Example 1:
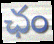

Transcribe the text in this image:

ఛం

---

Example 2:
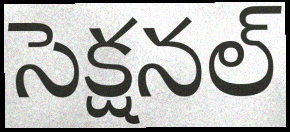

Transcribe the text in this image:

సెక్షనల్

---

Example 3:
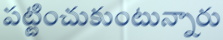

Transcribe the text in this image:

పట్టించుకుంటున్నారు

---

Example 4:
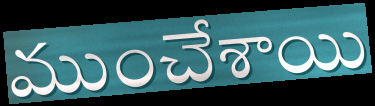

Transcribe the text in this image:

ముంచేశాయి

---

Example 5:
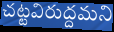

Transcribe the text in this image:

చట్టవిరుద్దమని